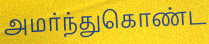
அமர்ந்துகொண்ட